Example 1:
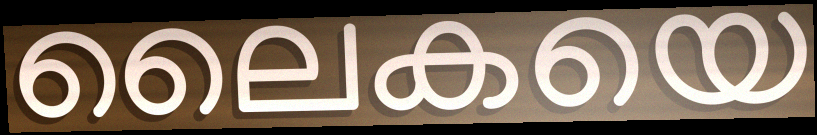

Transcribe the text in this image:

ലൈകയെ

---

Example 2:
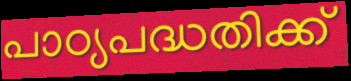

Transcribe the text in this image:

പാഠ്യപദ്ധതിക്ക്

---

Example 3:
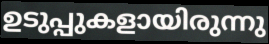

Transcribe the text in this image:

ഉടുപ്പുകളായിരുന്നു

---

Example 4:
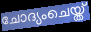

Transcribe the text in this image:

ചോദ്യംചെയ്ത്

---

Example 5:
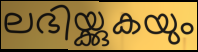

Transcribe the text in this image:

ലഭിയ്ക്കുകയും